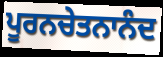
ਪੂਰਨਚੇਤਨਾਨੰਦ